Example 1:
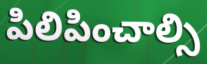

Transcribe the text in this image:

పిలిపించాల్సి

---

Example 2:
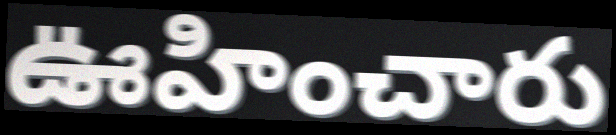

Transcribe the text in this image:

ఊహించారు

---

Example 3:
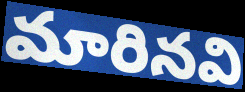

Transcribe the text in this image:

మారినవి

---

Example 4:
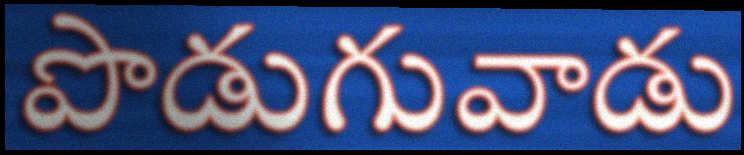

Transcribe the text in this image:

పొడుగువాడు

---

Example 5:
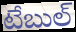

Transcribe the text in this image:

టేబుల్